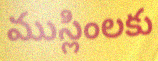
ముస్లింలకు